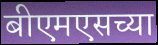
बीएमएसच्या